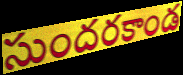
సుందరకాండ